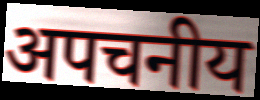
अपचनीय